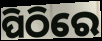
ପିଠିରେ